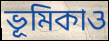
ভূমিকাও